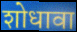
शोधावा